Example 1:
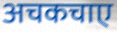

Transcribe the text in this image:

अचकचाए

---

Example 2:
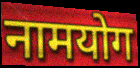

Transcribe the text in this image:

नामयोग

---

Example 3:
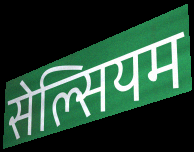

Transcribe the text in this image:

सेल्सियम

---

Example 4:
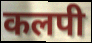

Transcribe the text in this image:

कलपी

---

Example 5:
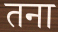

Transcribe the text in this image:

तना